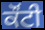
ਕੌਂਟੀ